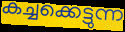
കച്ചക്കെട്ടുന്ന